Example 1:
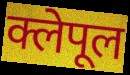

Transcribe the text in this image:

क्लेपूल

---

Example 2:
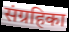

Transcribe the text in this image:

संग्रहिका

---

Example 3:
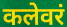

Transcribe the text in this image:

कलेवरं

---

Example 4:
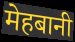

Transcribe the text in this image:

मेहबानी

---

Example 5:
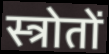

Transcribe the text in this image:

स्त्रोतों